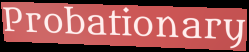
Probationary